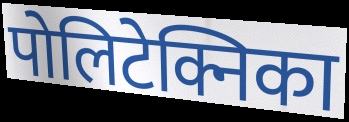
पोलिटेक्निका